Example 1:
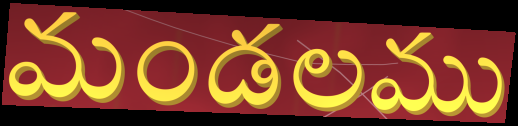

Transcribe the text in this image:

మండలము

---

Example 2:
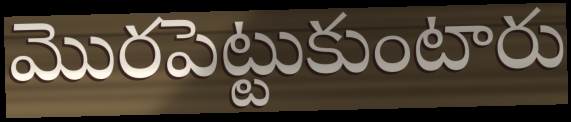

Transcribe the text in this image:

మొరపెట్టుకుంటారు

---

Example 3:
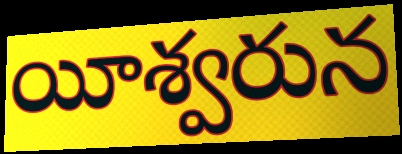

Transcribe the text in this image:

యీశ్వరున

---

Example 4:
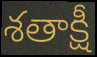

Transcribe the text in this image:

శతాక్షీ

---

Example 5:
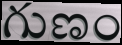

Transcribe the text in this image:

గుణం